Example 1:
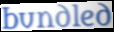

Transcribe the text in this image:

bundled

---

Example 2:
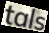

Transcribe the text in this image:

tals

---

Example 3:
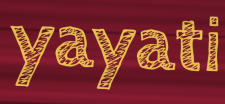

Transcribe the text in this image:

yayati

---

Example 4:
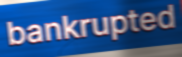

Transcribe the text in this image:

bankrupted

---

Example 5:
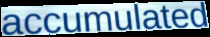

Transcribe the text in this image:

accumulated